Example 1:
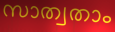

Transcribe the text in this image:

സാത്വതാം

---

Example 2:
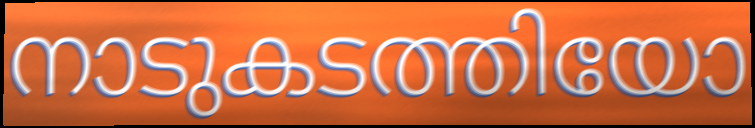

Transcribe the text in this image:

നാടുകടത്തിയോ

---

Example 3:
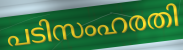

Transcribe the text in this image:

പടിസംഹരതി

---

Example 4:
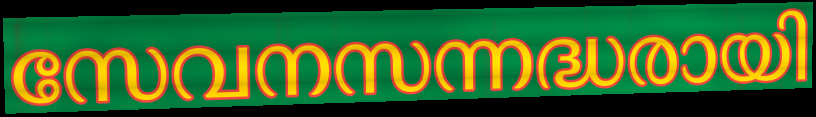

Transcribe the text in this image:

സേവനസന്നദ്ധരായി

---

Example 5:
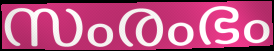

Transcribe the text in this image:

സംരംഭം